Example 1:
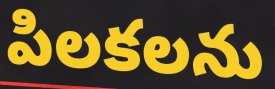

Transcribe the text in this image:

పిలకలను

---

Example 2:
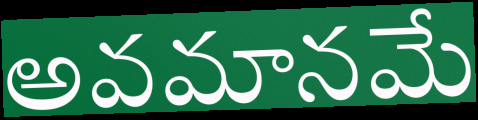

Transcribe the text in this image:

అవమానమే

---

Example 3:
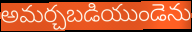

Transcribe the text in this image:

అమర్చబడియుండెను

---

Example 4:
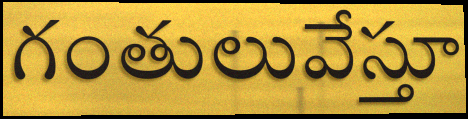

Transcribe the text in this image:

గంతులువేస్తూ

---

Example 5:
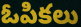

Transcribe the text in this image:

ఓపికలు